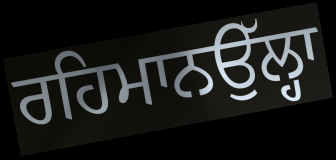
ਰਹਿਮਾਨਉੱਲ੍ਹਾ